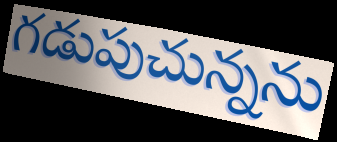
గడుపుచున్నను